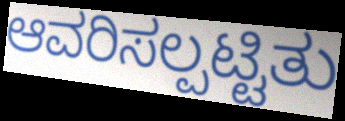
ಆವರಿಸಲ್ಪಟ್ಟಿತು